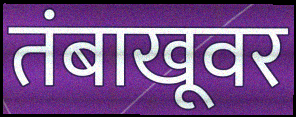
तंबाखूवर